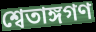
শ্বেতাঙ্গগণ